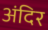
अंदिर